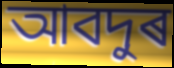
আবদুৰ